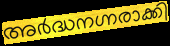
അർദ്ധനഗ്നരാക്കി